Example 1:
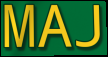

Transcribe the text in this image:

MAJ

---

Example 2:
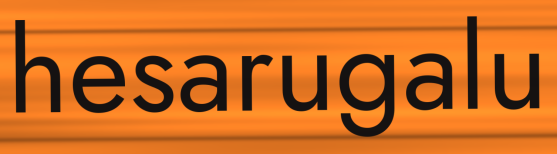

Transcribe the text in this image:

hesarugalu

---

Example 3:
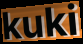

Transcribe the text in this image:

kuki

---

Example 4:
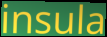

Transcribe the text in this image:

insula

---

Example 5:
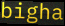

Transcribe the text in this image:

bigha